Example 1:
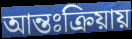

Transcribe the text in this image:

আন্তঃক্রিয়ায়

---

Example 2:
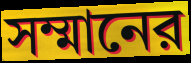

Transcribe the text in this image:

সম্মানের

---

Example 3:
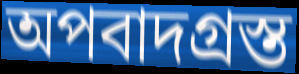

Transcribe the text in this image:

অপবাদগ্রস্ত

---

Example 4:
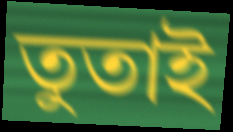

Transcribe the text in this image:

তুতাই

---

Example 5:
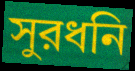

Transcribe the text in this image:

সুরধনি